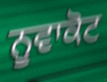
ਨੂਵਾਕੋਟ